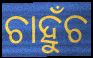
ଚାହୁଁଚ